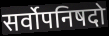
सर्वोपनिषदो